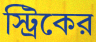
স্ট্রিকের